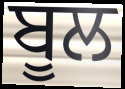
ਬੂਲ